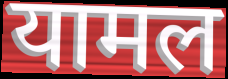
यामल